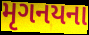
મૃગનયના